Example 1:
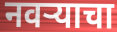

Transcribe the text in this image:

नवऱ्याचा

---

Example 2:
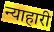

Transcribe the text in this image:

न्याहारी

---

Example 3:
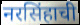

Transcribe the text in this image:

नरसिंहाची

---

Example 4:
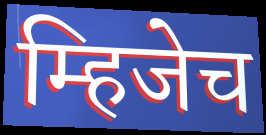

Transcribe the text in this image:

म्हिजेच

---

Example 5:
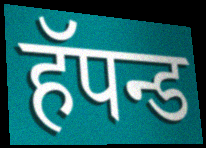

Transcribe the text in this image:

हॅपन्ड